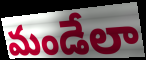
మండేలా